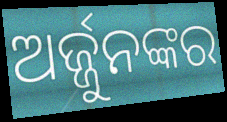
ଅର୍ଜ୍ଜୁନଙ୍କର